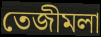
তেজীমলা